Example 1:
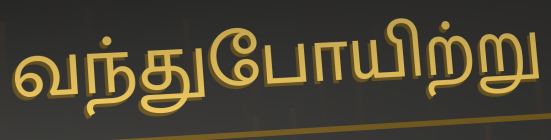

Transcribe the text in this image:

வந்துபோயிற்று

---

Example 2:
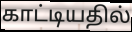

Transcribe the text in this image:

காட்டியதில்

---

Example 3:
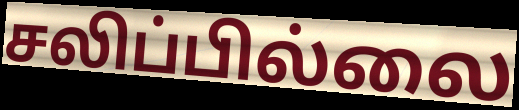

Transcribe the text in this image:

சலிப்பில்லை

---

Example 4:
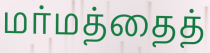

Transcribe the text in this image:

மர்மத்தைத்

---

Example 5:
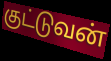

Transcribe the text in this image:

குட்டுவன்